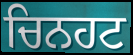
ਚਿਨਹਟ